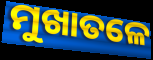
ମୁଖାତଳେ